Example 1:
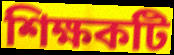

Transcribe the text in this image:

শিক্ষকটি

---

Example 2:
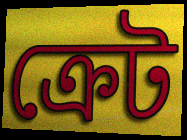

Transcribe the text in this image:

ক্রেট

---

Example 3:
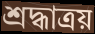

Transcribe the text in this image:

শ্রদ্ধাত্রয়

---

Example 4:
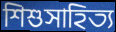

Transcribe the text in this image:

শিশুসাহিত্য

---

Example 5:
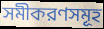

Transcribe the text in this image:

সমীকরণসমূহ